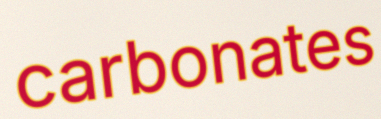
carbonates